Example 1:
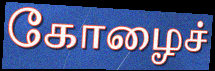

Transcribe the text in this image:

கோழைச்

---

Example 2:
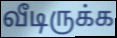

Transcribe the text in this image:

வீடிருக்க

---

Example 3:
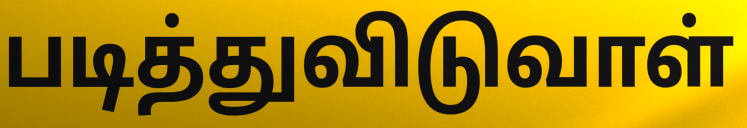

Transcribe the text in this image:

படித்துவிடுவாள்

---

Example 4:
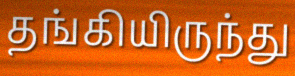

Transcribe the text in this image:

தங்கியிருந்து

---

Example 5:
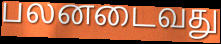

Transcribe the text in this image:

பலனடைவது